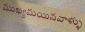
ముఖ్యమయినవాళ్ళు